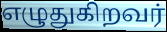
எழுதுகிறவர்